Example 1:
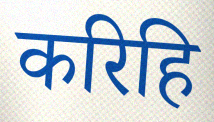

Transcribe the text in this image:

करिहि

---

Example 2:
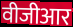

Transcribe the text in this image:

वीजीआर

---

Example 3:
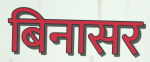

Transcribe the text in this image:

बिनासर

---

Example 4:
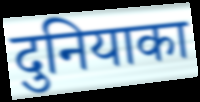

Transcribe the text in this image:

दुनियाका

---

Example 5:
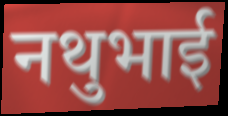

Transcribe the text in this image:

नथुभाई